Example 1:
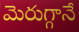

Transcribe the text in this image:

మెరుగ్గానే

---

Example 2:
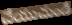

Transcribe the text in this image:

చేయుచుండి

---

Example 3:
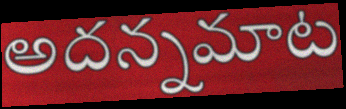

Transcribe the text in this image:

అదన్నమాట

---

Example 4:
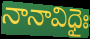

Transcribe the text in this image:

నానావిధైః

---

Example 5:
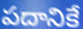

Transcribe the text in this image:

పదానికే